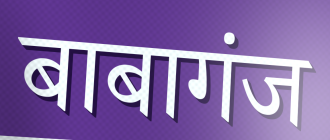
बाबागंज